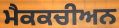
ਮੈਕਕਚੀਅਨ